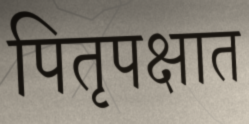
पितृपक्षात